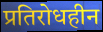
प्रतिरोधहीन